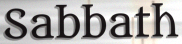
Sabbath